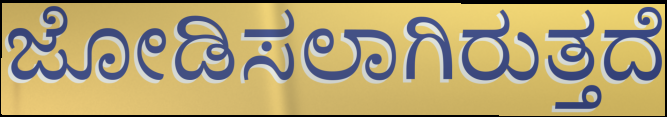
ಜೋಡಿಸಲಾಗಿರುತ್ತದೆ